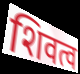
शिवत्व